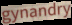
gynandry